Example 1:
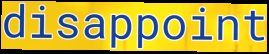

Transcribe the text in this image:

disappoint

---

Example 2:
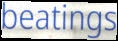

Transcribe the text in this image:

beatings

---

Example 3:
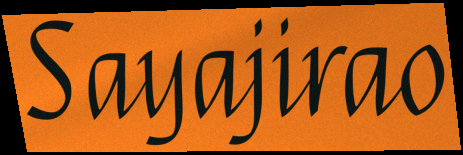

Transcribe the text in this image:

Sayajirao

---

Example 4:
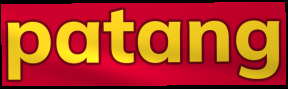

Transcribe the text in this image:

patang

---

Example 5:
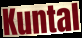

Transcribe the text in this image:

Kuntal